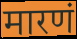
मारणं